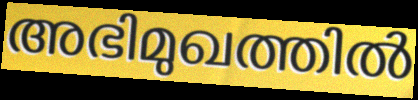
അഭിമുഖത്തിൽ